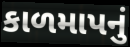
કાળમાપનું